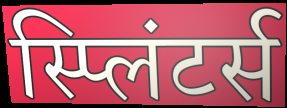
स्प्लिंटर्स